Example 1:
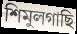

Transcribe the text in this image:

শিমুলগাছি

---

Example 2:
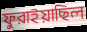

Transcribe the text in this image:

ফুরাইয়াছিল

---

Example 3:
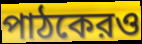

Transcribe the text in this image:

পাঠকেরও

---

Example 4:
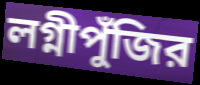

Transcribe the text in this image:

লগ্নীপুঁজির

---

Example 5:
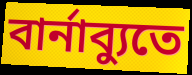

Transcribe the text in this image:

বার্নাব্যুতে